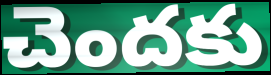
చెందకు